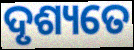
ଦୃଶ୍ୟତେ